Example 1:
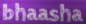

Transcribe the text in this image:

bhaasha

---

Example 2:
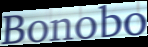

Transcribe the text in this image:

Bonobo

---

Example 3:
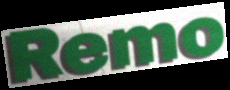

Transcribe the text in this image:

Remo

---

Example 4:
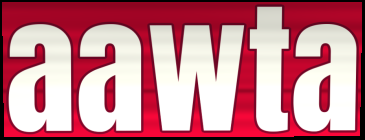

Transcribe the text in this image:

aawta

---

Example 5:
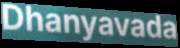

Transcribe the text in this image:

Dhanyavada